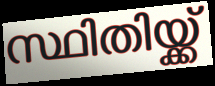
സ്ഥിതിയ്ക്ക്